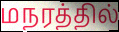
மநரத்தில்